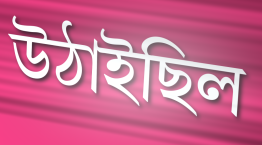
উঠাইছিল